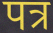
पत्र